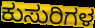
ಕುಸುರಿಗಳ